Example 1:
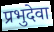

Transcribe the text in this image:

प्रभुदेवा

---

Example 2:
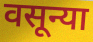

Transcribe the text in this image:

वसून्या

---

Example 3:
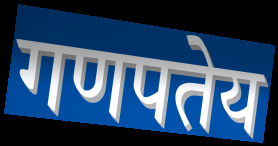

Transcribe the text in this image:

गणपतेय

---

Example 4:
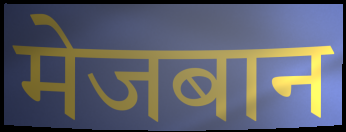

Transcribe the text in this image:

मेजबान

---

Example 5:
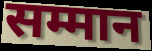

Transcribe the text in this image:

सम्मान